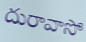
దురావాసో